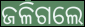
ଜଳିଗଲେ